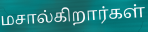
மசால்கிறார்கள்